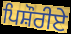
ਪਿਸ਼ੌਰੀਏ